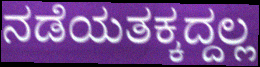
ನಡೆಯತಕ್ಕದ್ದಲ್ಲ